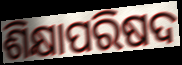
ଶିକ୍ଷାପରିଷଦ